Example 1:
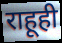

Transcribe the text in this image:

राहूही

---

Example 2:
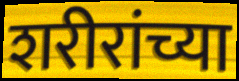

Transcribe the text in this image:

शरीरांच्या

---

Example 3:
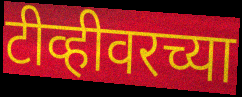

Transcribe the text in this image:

टीव्हीवरच्या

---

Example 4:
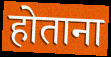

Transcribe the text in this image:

होताना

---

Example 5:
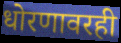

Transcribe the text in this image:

धोरणावरही